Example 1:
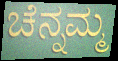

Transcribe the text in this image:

ಚೆನ್ನಮ್ಮ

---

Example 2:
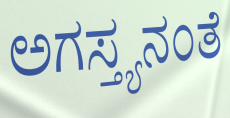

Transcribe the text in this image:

ಅಗಸ್ತ್ಯನಂತೆ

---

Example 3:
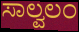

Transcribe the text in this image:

ಸಾಲ್ವಲಂ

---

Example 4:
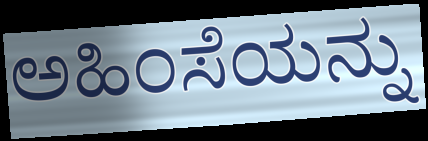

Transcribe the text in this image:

ಅಹಿಂಸೆಯನ್ನು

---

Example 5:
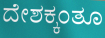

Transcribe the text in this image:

ದೇಶಕ್ಕಂತೂ